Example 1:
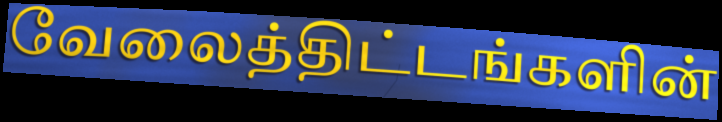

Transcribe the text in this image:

வேலைத்திட்டங்களின்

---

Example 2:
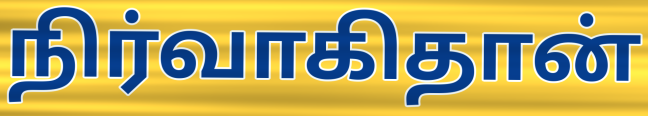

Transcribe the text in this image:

நிர்வாகிதான்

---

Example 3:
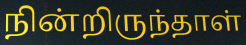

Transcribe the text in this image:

நின்றிருந்தாள்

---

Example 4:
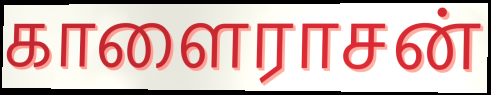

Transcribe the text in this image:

காளைராசன்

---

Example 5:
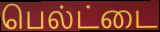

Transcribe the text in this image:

பெல்ட்டை